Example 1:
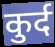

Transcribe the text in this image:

कुर्द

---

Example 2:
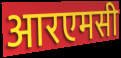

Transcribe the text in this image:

आरएमसी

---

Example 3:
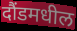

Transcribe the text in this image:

दौंडमधील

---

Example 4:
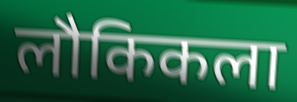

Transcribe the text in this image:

लौकिकला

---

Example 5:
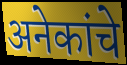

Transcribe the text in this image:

अनेकांचे